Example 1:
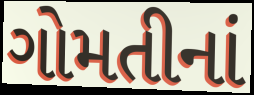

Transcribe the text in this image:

ગોમતીનાં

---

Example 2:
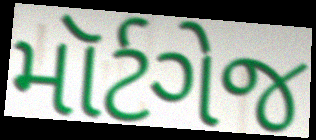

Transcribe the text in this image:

મૉર્ટગેજ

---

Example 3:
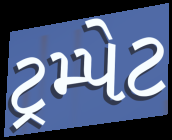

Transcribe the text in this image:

ટ્રમ્પેટ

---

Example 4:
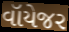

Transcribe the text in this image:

વૉયેજર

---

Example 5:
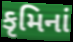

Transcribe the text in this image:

કૃમિનાં